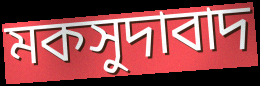
মকসুদাবাদ